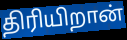
திரியிறான்